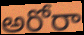
అరోరా